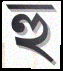
হু